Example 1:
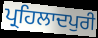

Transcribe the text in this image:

ਪ੍ਰਹਿਲਾਦਪੁਰੀ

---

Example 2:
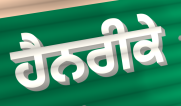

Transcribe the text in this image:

ਹੈਨਰੀਕੇ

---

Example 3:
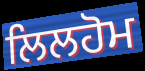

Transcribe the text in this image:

ਲਿਲਹੋਮ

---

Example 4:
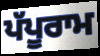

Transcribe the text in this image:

ਪੱਪੂਰਾਮ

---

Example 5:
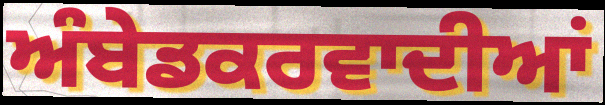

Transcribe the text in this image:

ਅੰਬੇਡਕਰਵਾਦੀਆਂ